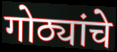
गोठ्यांचे